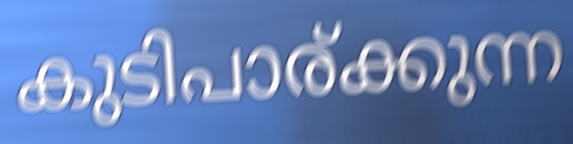
കുടിപാര്ക്കുന്ന